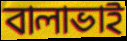
বালাভাই